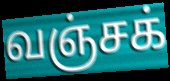
வஞ்சக்